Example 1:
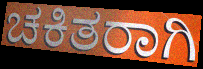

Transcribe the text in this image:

ಚಕಿತರಾಗಿ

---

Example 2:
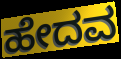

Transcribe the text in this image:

ಹೇದವ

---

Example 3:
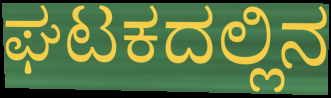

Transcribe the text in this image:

ಘಟಕದಲ್ಲಿನ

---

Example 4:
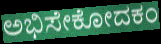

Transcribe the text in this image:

ಅಭಿಸೇಕೋದಕಂ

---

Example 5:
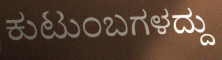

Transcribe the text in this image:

ಕುಟುಂಬಗಳದ್ದು